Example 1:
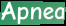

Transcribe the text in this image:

Apnea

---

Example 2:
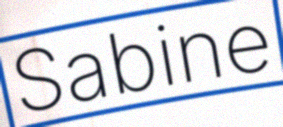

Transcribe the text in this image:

Sabine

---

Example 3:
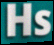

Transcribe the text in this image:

Hs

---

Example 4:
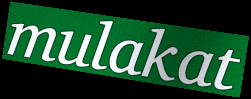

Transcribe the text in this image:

mulakat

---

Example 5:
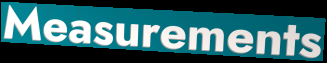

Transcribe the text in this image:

Measurements